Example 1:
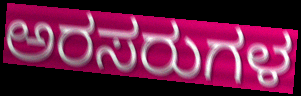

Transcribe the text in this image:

ಅರಸರುಗಳ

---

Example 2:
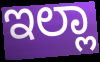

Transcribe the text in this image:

ಇಲ್ಲಾ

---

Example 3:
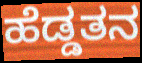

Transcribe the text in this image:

ಹೆಡ್ಡತನ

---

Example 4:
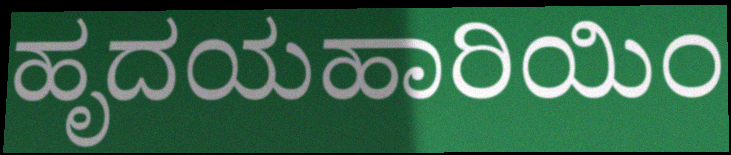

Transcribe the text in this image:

ಹೃದಯಹಾರಿಯಿಂ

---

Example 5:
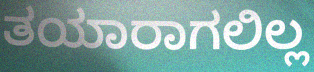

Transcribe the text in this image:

ತಯಾರಾಗಲಿಲ್ಲ